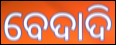
ବେଦାଦି